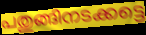
പതുങ്ങിനടക്കട്ടെ